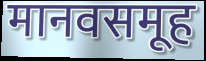
मानवसमूह